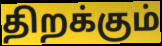
திறக்கும்